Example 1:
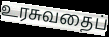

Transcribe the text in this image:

உரசுவதைப்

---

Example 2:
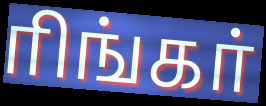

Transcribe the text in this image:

ரிங்கர்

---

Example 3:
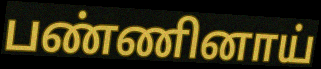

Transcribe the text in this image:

பண்ணினாய்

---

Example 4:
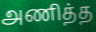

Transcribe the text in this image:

அணித்த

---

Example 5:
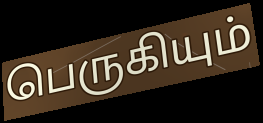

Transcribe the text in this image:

பெருகியும்